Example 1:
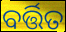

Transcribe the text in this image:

ବର୍ତ୍ତିତ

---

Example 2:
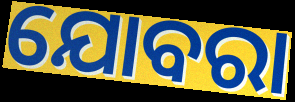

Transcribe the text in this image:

ଯୋବରା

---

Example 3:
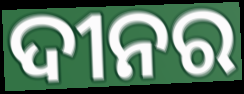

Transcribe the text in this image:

ଦୀନର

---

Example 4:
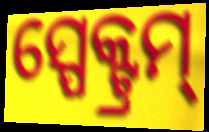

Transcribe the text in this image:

ସ୍ପେକ୍ଟ୍ରମ୍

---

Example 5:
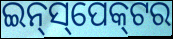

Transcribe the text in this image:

ଇନ୍‌ସ୍‌ପେକ୍‌ଟର